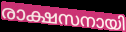
രാക്ഷസനായി